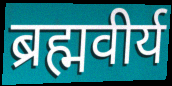
ब्रह्मवीर्य